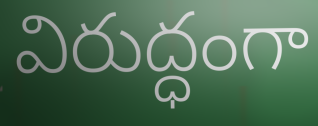
విరుద్ధంగా